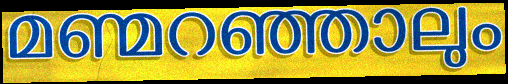
മണ്മറഞ്ഞാലും